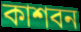
কাশবন